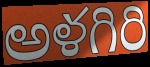
అళగిరి